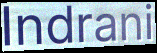
Indrani